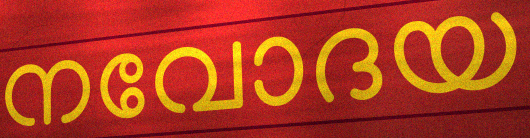
നവോദയ